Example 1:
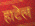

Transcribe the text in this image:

हाटेल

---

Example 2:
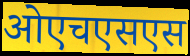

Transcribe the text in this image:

ओएचएसएस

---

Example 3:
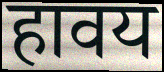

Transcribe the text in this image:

हावय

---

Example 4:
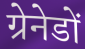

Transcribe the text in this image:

ग्रेनेडों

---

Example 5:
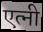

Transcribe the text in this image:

एत्नी